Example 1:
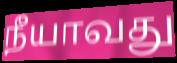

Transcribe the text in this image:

நீயாவது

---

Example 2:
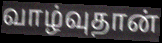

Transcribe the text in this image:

வாழ்வுதான்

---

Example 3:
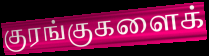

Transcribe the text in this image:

குரங்குகளைக்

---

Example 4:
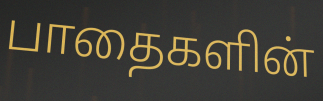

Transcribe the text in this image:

பாதைகளின்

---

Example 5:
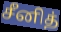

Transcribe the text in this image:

சீனித்